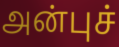
அன்புச்